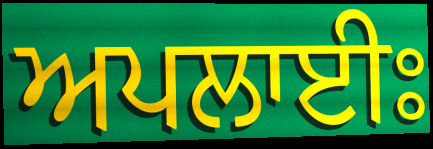
ਅਪਲਾਈਃ